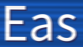
Eas